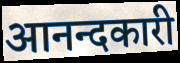
आनन्दकारी